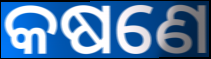
କଷଣେ